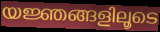
യജ്ഞങ്ങളിലൂടെ